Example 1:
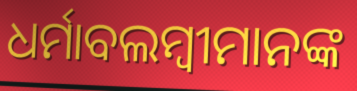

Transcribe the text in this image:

ଧର୍ମାବଲମ୍ବୀମାନଙ୍କ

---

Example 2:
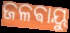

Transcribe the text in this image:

ଜଳଵାୟୁ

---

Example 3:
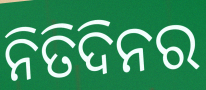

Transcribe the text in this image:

ନିତିଦିନର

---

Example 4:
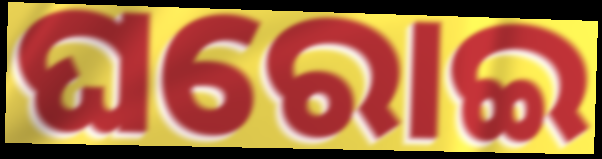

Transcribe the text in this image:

ଘରୋଇ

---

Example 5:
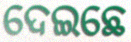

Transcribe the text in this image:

ଦେଇଛେ